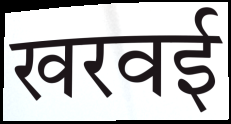
खरवई